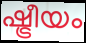
ഷ്ട്രീയം